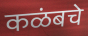
कळंबचे